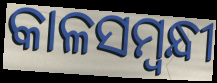
କାଳସମ୍ଵନ୍ଧୀ